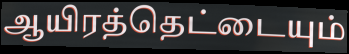
ஆயிரத்தெட்டையும்